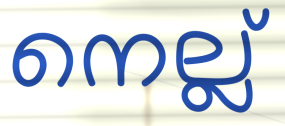
നെല്ല്